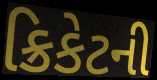
ક્રિકેટની